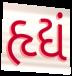
હૃદ્યં